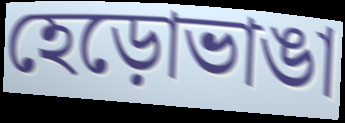
হেড়োভাঙা